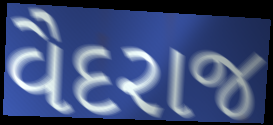
વૈદરાજ